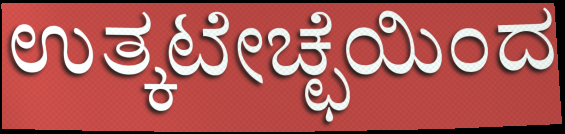
ಉತ್ಕಟೇಚ್ಛೆಯಿಂದ